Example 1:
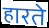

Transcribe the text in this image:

हारते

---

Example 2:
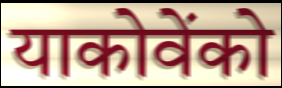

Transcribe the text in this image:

याकोवेंको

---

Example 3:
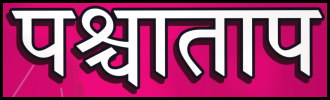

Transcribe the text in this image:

पश्चाताप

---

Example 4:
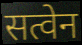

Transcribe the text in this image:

सत्वेन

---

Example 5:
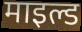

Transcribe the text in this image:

माइल्ड